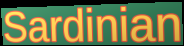
Sardinian